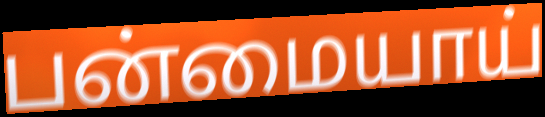
பன்மையாய்